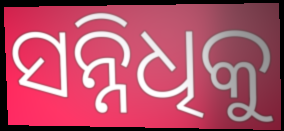
ସନ୍ନିଧିକୁ